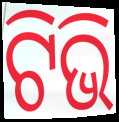
ଟିଭି